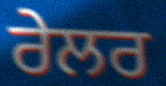
ਰੇਲਰ